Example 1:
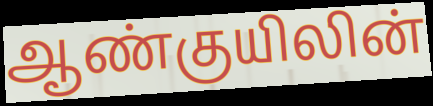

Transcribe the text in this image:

ஆண்குயிலின்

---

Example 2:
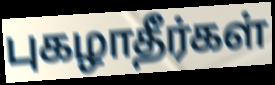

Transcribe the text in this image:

புகழாதீர்கள்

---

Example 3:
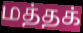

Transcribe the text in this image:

மத்தக்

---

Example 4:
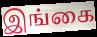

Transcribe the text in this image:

இங்கை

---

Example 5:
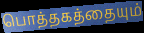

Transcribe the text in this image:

பொத்தகத்தையும்